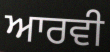
ਆਰਵੀ